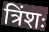
त्रिंशः